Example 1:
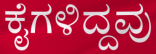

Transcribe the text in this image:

ಕೈಗಳಿದ್ದವು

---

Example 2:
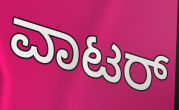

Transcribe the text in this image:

ವಾಟರ್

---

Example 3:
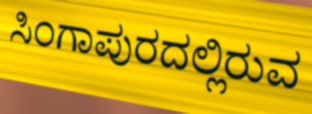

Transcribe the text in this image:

ಸಿಂಗಾಪುರದಲ್ಲಿರುವ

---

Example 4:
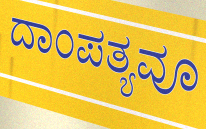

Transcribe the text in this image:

ದಾಂಪತ್ಯವೂ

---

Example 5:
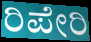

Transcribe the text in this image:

ರಿಪೇರಿ